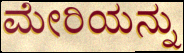
ಮೇರಿಯನ್ನು